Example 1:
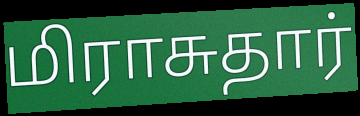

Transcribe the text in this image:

மிராசுதார்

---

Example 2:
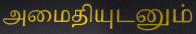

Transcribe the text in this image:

அமைதியுடனும்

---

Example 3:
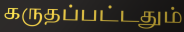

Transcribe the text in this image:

கருதப்பட்டதும்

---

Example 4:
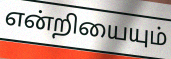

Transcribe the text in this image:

என்றியையும்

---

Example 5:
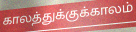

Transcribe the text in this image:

காலத்துக்குக்காலம்